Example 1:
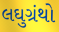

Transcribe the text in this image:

લઘુગ્રંથો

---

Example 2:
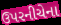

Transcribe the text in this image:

ઉપરનીચેના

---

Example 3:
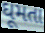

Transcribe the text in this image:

ઘૂમતા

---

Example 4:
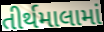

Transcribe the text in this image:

તીર્થમાલામાં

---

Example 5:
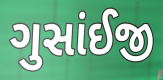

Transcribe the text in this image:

ગુસાંઈજી